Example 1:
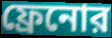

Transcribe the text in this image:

ফ্রেনোর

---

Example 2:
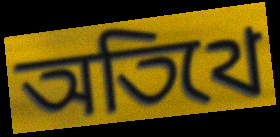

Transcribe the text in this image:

অতিথে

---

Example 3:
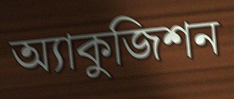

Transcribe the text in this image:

অ্যাকুজিশন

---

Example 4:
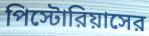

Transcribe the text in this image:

পিস্টোরিয়াসের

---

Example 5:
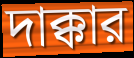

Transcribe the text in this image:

দাক্কার